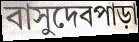
বাসুদেবপাড়া